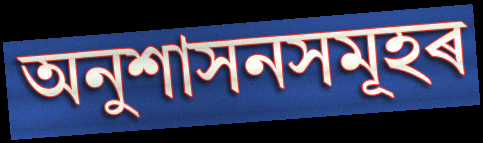
অনুশাসনসমূহৰ